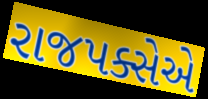
રાજપક્સેએ